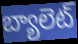
బ్యాలెట్